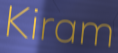
Kiram